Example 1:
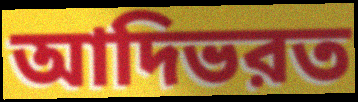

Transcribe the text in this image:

আদিভরত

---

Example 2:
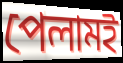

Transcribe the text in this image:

পেলামই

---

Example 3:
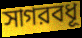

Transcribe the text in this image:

সাগরবধূ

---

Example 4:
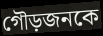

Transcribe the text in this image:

গৌড়জনকে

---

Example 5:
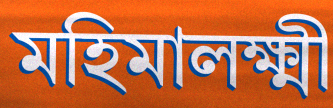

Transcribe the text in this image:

মহিমালক্ষ্মী